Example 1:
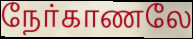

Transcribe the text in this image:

நேர்காணலே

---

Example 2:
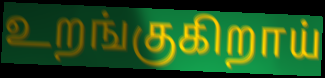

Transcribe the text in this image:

உறங்குகிறாய்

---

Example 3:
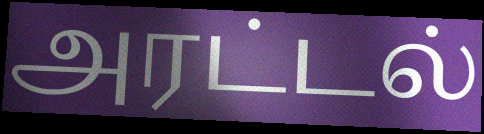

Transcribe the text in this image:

அரட்டல்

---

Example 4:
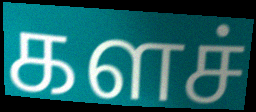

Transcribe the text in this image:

களச்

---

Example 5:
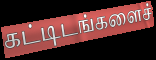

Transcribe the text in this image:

கட்டிடங்களைச்